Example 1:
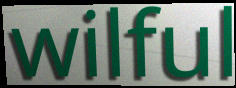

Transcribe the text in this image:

wilful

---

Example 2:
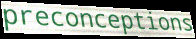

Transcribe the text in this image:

preconceptions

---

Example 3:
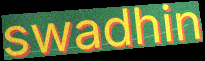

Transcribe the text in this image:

swadhin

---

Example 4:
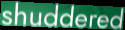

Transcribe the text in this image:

shuddered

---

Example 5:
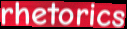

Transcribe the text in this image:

rhetorics